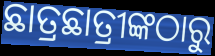
ଛାତ୍ରଛାତ୍ରୀଙ୍କଠାରୁ